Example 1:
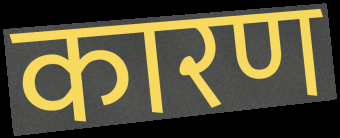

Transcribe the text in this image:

कारण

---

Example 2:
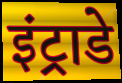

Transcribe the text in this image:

इंट्राडे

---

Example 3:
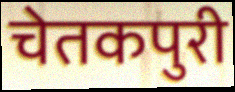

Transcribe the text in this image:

चेतकपुरी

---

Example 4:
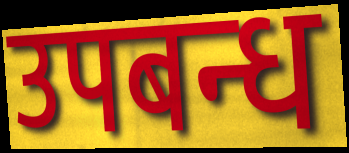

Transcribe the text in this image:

उपबन्ध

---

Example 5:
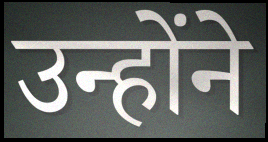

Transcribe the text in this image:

उन्होंने